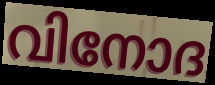
വിനോദ